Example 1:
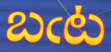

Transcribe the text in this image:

బఁట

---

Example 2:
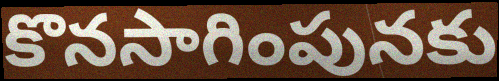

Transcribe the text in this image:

కొనసాగింపునకు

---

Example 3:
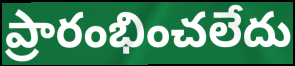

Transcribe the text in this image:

ప్రారంభించలేదు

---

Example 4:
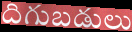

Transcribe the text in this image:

దిగుబడులు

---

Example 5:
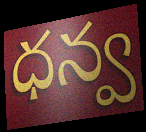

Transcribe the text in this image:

ధన్వ